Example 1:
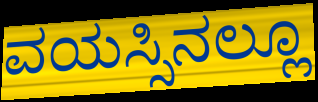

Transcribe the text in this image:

ವಯಸ್ಸಿನಲ್ಲೂ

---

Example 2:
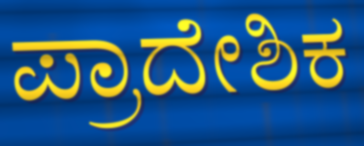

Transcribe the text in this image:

ಪ್ರಾದೇಶಿಕ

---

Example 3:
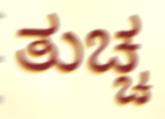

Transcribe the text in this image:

ತುಚ್ಚ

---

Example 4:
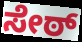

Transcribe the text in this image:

ಸೇಠ್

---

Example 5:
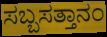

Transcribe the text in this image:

ಸಬ್ಬಸತ್ತಾನಂ